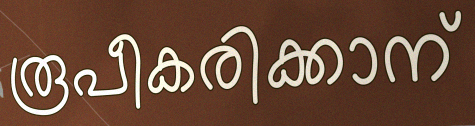
രൂപീകരിക്കാന്